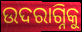
ଉଦରାଗ୍ନିକୁ